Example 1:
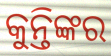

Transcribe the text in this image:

କୁନ୍ତିଙ୍କର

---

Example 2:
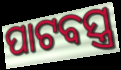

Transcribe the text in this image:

ପାଟବସ୍ତ୍ର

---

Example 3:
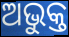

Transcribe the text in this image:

ଅଭୁକ୍ତ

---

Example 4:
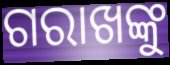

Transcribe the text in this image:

ଗରାଖଙ୍କୁ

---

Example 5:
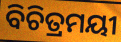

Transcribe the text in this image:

ବିଚିତ୍ରମୟୀ